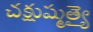
చక్షుష్మత్యై